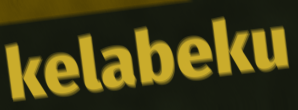
kelabeku